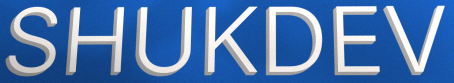
SHUKDEV